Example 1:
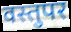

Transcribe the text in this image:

वस्तुपर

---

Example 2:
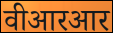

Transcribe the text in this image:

वीआरआर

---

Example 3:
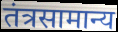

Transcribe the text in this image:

तंत्रसामान्य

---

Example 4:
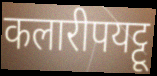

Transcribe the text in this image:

कलारीपयट्टू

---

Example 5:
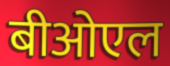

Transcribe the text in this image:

बीओएल